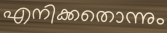
എനിക്കതൊന്നും